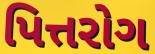
પિત્તરોગ